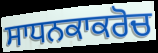
ਸਾਧਨਕਾਕਰੋਚ